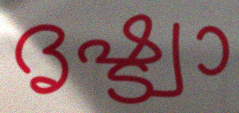
ദൃഷ്ട്വാ